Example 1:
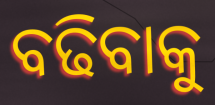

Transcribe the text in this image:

ବଢିବାକୁ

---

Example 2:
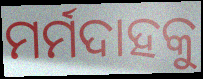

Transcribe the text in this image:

ମର୍ମଦାହକୁ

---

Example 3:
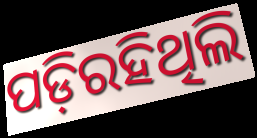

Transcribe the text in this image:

ପଡ଼ିରହିଥିଲି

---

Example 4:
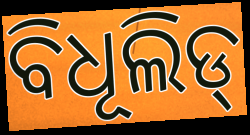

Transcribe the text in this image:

ବିଧୂଲିଡ୍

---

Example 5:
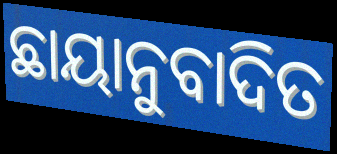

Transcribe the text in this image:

ଛାୟାନୁବାଦିତ